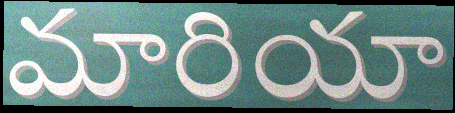
మారియా